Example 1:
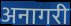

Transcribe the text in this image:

अनागरी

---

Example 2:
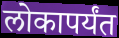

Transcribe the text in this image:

लोकापर्यंत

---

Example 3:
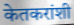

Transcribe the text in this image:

केतकरांशी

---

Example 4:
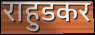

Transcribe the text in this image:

राहुडकर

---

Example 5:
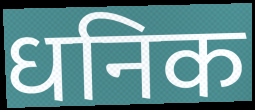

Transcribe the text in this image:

धनिक